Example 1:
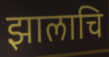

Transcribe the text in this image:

झालाचि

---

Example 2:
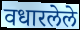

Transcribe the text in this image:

वधारलेले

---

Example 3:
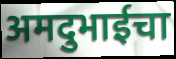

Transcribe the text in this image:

अमदुभाईचा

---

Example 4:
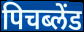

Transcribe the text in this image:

पिचब्लेंड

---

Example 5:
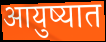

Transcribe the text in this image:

आयुष्यात